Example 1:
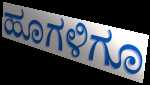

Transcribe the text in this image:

ಹೂಗಳಿಗೂ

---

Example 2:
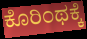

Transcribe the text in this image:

ಕೊರಿಂಥಕ್ಕೆ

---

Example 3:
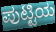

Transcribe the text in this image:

ಪುಟ್ಟಿಯ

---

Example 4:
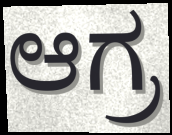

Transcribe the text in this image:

ಆಗ್ರ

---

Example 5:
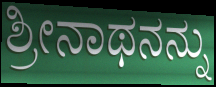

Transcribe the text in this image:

ಶ್ರೀನಾಥನನ್ನು